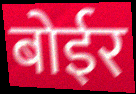
बोईर